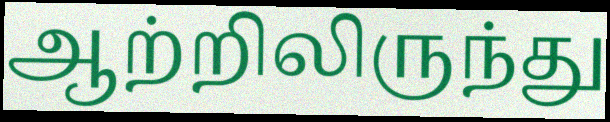
ஆற்றிலிருந்து